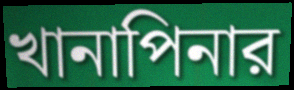
খানাপিনার